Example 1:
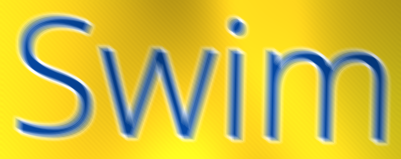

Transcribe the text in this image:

Swim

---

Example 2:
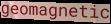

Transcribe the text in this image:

geomagnetic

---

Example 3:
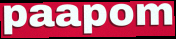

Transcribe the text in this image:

paapom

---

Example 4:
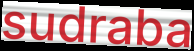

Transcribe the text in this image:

sudraba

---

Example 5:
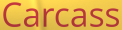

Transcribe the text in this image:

Carcass